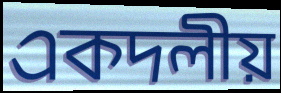
একদলীয়